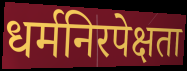
धर्मनिरपेक्षता